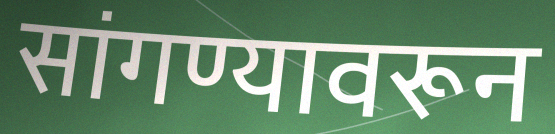
सांगण्यावरून